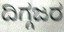
ದಿಗ್ಗಜರ